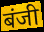
बंजी